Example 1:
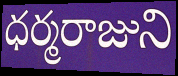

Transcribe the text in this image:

ధర్మరాజుని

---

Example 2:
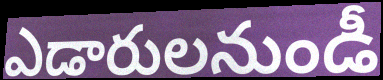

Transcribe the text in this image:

ఎడారులనుండీ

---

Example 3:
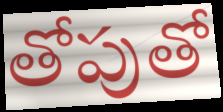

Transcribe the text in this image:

తోపుతో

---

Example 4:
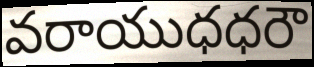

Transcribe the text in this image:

వరాయుధధరౌ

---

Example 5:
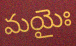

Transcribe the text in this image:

మయైః